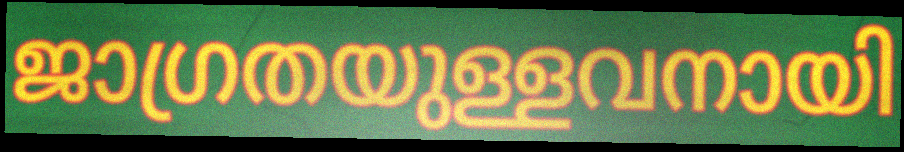
ജാഗ്രതയുള്ളവനായി